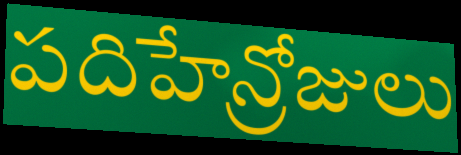
పదిహేన్రోజులు